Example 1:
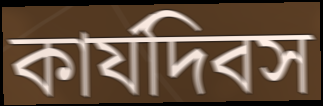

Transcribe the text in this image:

কার্যদিবস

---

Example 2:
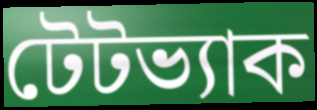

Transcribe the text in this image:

টেটভ্যাক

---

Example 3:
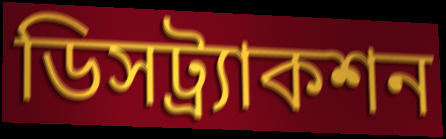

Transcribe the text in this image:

ডিসট্র্যাকশন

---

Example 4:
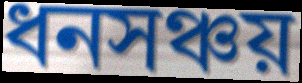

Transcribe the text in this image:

ধনসঞ্চয়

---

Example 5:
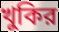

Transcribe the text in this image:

খুকির